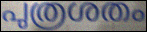
പുത്രശതം